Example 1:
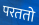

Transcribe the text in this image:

परततो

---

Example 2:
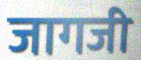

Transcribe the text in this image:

जागजी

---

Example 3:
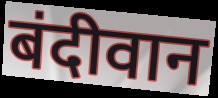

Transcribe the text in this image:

बंदीवान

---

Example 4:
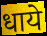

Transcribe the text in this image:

धाये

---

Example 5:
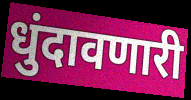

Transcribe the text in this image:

धुंदावणारी